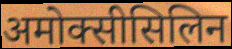
अमोक्सीसिलिन